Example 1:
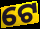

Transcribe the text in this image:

ଟେ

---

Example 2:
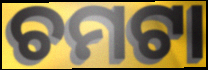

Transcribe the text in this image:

ଚମଟା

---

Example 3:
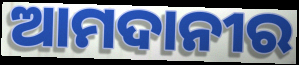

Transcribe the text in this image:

ଆମଦାନୀର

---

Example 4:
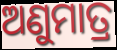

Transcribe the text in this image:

ଅଣୁମାତ୍ର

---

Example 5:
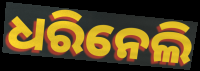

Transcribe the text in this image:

ଧରିନେଲି